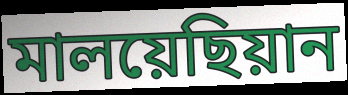
মালয়েছিয়ান